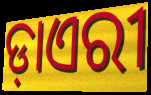
ଡ଼ାଏରୀ